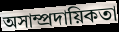
অসাম্প্রদায়িকতা